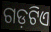
ଗଡ଼ଟିଏ